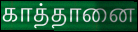
காத்தானை